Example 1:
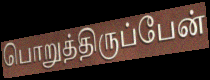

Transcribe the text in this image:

பொறுத்திருப்பேன்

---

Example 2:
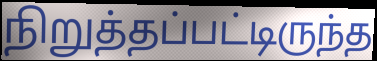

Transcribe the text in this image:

நிறுத்தப்பட்டிருந்த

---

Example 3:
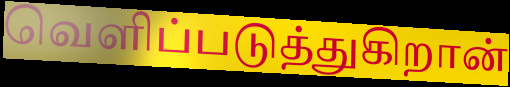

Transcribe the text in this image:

வெளிப்படுத்துகிறான்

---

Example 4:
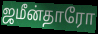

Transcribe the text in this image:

ஜமீன்தாரோ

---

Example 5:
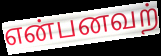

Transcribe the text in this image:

என்பனவற்